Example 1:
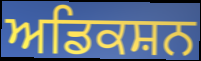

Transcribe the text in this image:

ਅਡਿਕਸ਼ਨ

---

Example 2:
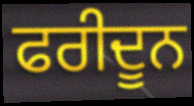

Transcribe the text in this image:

ਫਰੀਦੂਨ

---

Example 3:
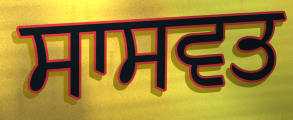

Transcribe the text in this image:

ਸਾਸਵਤ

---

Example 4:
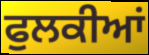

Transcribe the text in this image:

ਫੁਲਕੀਆਂ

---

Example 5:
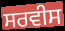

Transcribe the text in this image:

ਸਰਵੀਸ